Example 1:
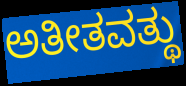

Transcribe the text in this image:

ಅತೀತವತ್ಥು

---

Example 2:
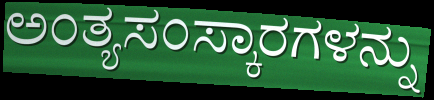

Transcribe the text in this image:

ಅಂತ್ಯಸಂಸ್ಕಾರಗಳನ್ನು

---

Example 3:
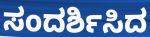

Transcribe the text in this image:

ಸಂದರ್ಶಿಸಿದ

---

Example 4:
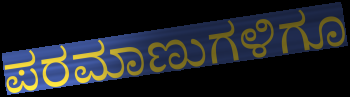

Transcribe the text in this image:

ಪರಮಾಣುಗಳಿಗೂ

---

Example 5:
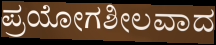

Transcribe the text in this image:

ಪ್ರಯೋಗಶೀಲವಾದ